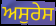
ਅਸੁਰੇਸ